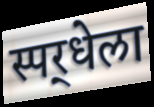
स्पर्धेला